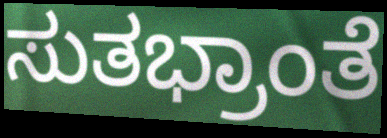
ಸುತಭ್ರಾಂತೆ